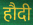
हौदी